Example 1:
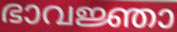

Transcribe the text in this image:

ഭാവജ്ഞാ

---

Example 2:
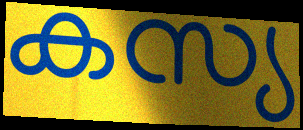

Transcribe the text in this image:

കസ്യ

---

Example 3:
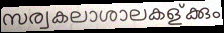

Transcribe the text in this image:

സര്വകലാശാലകള്ക്കും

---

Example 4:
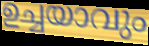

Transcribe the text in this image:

ഉച്ചയാവും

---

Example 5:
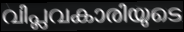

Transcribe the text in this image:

വിപ്ലവകാരിയുടെ